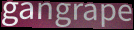
gangrape